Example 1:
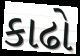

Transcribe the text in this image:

કાઢો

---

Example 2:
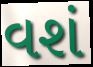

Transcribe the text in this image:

વશં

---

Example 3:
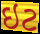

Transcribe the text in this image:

ઇટ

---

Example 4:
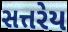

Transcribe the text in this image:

સત્તરેય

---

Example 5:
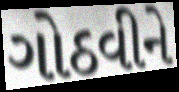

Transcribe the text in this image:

ગોઠવીને